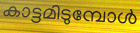
കാട്ടമിടുമ്പോൾ